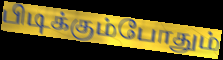
பிடிக்கும்போதும்